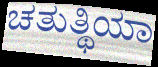
ಚತುತ್ಥಿಯಾ